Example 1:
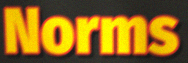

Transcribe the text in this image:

Norms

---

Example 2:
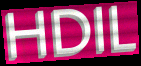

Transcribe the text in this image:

HDIL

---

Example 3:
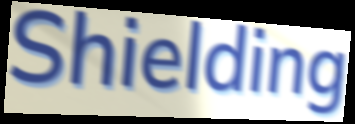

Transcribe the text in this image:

Shielding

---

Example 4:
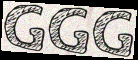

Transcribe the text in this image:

GGG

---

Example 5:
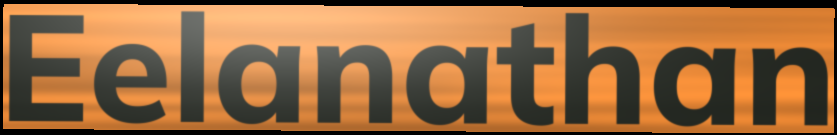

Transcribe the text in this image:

Eelanathan